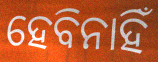
ହେବିନାହିଁ